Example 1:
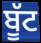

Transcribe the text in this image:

ਬੂੱਟ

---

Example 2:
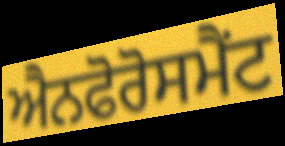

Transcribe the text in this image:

ਐਨਫੋਰੋਸਮੈਂਟ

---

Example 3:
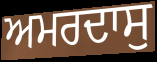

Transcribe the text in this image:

ਅਮਰਦਾਸੁ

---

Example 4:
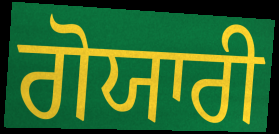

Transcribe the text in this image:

ਗੋਯਾਰੀ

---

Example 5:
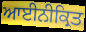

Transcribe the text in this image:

ਆਈਨੀਕ੍ਰਿਤ